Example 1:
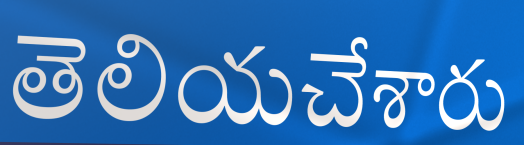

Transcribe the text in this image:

తెలియచేశారు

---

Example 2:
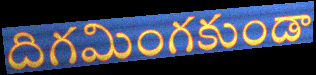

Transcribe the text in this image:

దిగమింగకుండా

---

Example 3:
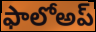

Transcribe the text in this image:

ఫాలోఅప్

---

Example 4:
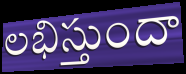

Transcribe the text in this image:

లభిస్తుందా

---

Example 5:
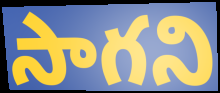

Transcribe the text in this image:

సాగని